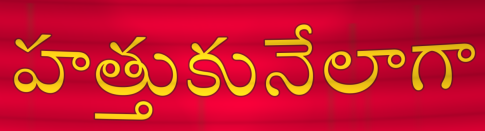
హత్తుకునేలాగా